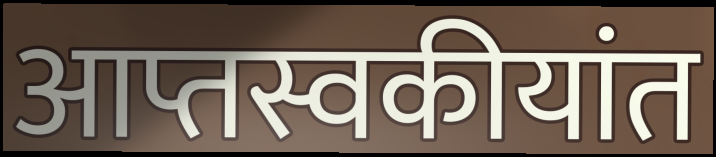
आप्तस्वकीयांत